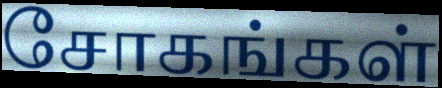
சோகங்கள்